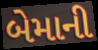
બેમાની